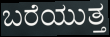
ಬರೆಯುತ್ತ